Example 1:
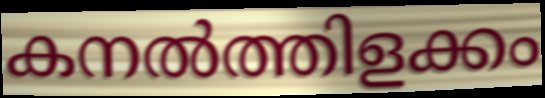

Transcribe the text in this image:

കനൽത്തിളക്കം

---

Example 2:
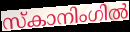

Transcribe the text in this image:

സ്കാനിംഗിൽ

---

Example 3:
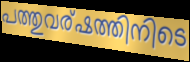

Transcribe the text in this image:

പത്തുവര്ഷത്തിനിടെ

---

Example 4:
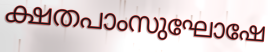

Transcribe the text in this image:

ക്ഷതപാംസുഘോഷേ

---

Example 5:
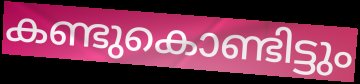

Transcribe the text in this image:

കണ്ടുകൊണ്ടിട്ടും